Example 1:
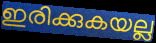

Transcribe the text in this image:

ഇരിക്കുകയല്ല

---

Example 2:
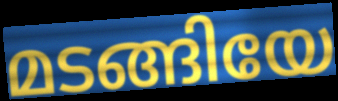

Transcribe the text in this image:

മടങ്ങിയേ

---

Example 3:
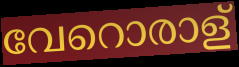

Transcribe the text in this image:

വേറൊരാള്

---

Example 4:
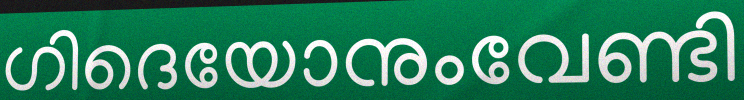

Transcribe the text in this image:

ഗിദെയോനുംവേണ്ടി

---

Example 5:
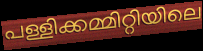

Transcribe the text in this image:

പള്ളിക്കമ്മിറ്റിയിലെ